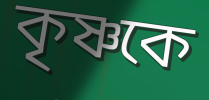
কৃষ্ণকে